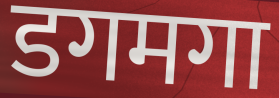
डगमगा